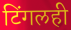
टिंगलही